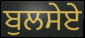
ਬੁਲਸੇਏ